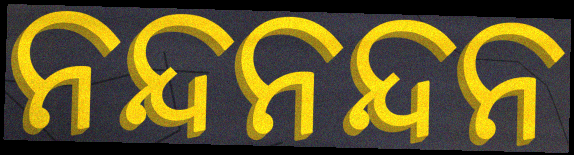
ନନ୍ଦନନ୍ଦନ